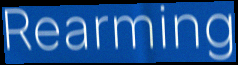
Rearming